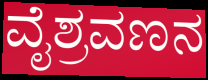
ವೈಶ್ರವಣನ